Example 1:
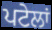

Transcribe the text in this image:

ਪਟੇਲਾਂ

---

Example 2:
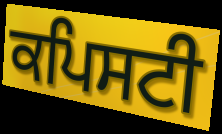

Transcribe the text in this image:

ਕਪਿਸਟੀ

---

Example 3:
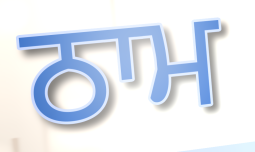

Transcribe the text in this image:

ਠਾਮ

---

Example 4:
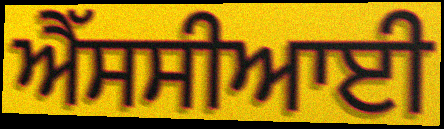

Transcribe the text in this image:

ਐੱਸਸੀਆਈ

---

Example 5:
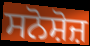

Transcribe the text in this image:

ਸਨੋਸ਼ੋਜ਼